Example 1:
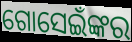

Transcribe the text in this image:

ଗୋସେଇଁଙ୍କର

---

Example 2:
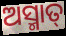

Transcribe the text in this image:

ଅସ୍ମାତ୍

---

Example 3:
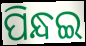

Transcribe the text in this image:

ପିନ୍ଧଇ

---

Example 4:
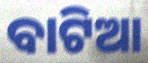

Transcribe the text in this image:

ବାଟିଆ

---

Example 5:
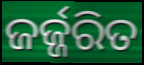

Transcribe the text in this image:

ଜର୍ଜ୍ଜରିତ